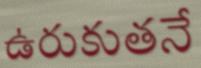
ఉరుకుతనే